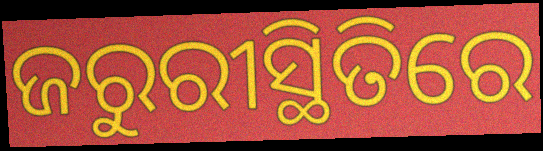
ଜରୁରୀସ୍ଥିତିରେ